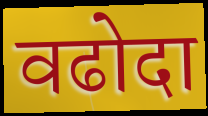
वढोदा